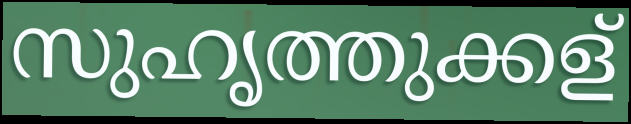
സുഹൃത്തുക്കള്